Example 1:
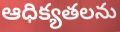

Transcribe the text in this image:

ఆధిక్యతలను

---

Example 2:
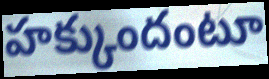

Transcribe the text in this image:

హక్కుందంటూ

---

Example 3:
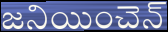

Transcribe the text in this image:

జనియించెన్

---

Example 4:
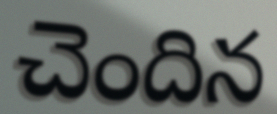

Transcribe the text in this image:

చెందిన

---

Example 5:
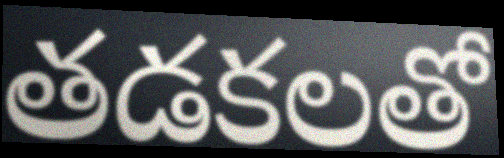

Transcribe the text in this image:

తడకలతో